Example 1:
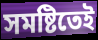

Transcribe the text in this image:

সমষ্টিতেই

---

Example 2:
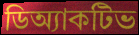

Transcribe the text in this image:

ডিঅ্যাকটিভ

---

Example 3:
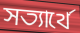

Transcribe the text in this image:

সত্যার্থে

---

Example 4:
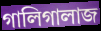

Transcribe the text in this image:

গালিগালাজ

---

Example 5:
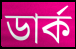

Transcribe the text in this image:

ডার্ক